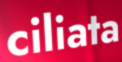
ciliata